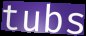
tubs